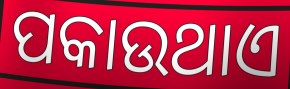
ପକାଉଥାଏ